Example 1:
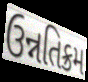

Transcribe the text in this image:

ઉન્નતિક્રમ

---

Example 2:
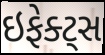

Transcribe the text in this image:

ઇફેક્ટ્સ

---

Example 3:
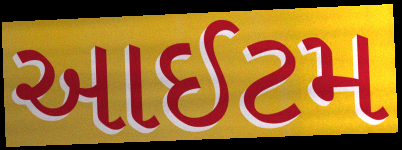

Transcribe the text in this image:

આઈટમ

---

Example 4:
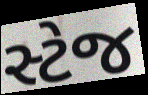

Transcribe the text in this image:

સ્ટેજ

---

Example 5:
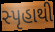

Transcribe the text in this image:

સ્પૃહાથી